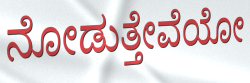
ನೋಡುತ್ತೇವೆಯೋ